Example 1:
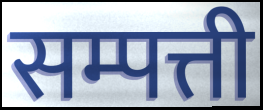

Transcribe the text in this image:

सम्पत्ती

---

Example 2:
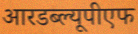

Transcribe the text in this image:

आरडब्ल्यूपीएफ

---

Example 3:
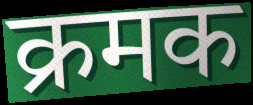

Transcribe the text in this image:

क्रमक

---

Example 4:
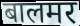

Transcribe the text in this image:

बालमर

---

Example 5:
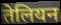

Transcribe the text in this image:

तेलियन